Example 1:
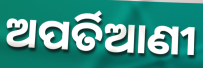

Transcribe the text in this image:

ଅପର୍ତିଆଣୀ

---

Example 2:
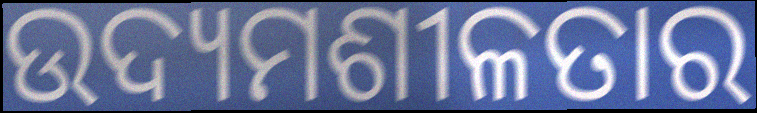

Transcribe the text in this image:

ଉଦ୍ୟମଶୀଳତାର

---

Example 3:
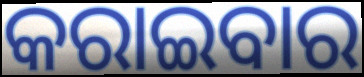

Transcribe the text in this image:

କରାଇବାର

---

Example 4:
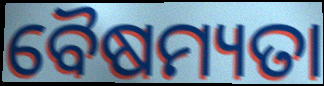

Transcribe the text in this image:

ବୈଷମ୍ୟତା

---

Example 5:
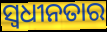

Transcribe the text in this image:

ସ୍ବଧୀନତାର